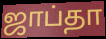
ஜாப்தா